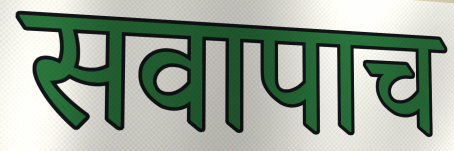
सवापाच